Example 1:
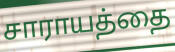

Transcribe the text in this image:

சாராயத்தை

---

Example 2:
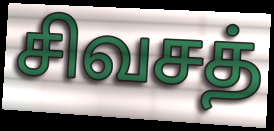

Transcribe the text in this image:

சிவசத்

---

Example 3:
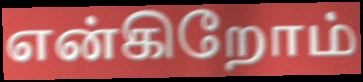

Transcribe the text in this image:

என்கிறோம்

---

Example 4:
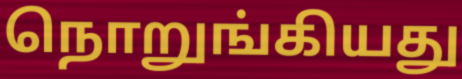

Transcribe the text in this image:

நொறுங்கியது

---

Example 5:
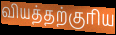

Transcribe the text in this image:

வியத்தற்குரிய